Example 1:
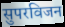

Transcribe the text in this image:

सुपरविजन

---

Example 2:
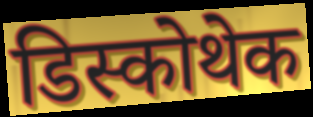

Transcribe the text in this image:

डिस्कोथेक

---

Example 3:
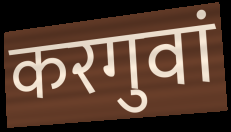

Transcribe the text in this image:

करगुवां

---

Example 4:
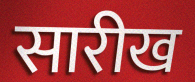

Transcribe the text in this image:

सारीख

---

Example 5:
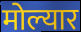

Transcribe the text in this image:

मोल्यार